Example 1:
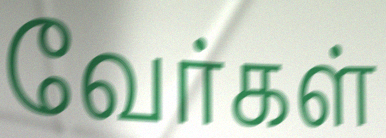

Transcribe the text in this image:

வேர்கள்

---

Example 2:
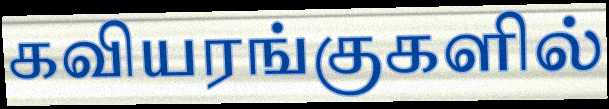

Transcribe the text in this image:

கவியரங்குகளில்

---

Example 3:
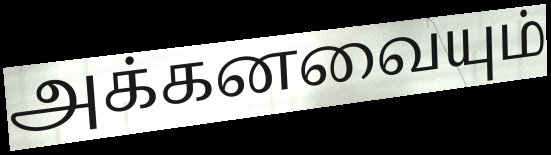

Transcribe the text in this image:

அக்கனவையும்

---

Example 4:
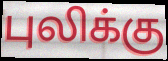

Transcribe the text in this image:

புலிக்கு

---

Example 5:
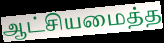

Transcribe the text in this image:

ஆட்சியமைத்த